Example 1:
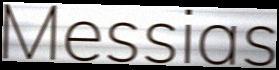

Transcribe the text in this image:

Messias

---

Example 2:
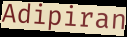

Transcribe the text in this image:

Adipiran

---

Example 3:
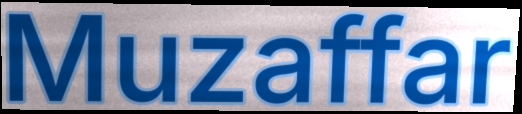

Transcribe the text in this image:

Muzaffar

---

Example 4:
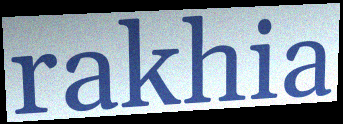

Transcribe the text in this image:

rakhia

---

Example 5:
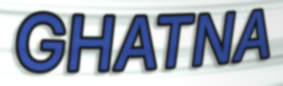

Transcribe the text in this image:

GHATNA